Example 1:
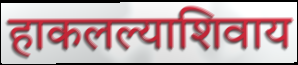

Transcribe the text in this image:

हाकलल्याशिवाय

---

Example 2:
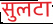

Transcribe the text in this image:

सुलटा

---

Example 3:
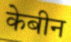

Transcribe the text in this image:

केबीन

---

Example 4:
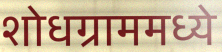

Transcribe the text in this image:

शोधग्राममध्ये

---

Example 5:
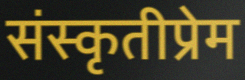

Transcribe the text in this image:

संस्कृतीप्रेम